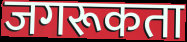
जगरूकता